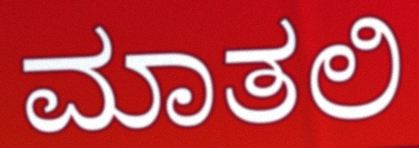
ಮಾತಲಿ